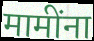
मामींना